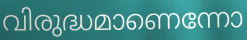
വിരുദ്ധമാണെന്നോ